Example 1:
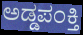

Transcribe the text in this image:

ಅಡ್ಡಪಂಕ್ತಿ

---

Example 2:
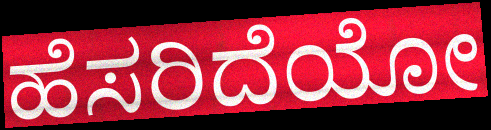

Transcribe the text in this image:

ಹೆಸರಿದೆಯೋ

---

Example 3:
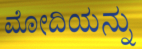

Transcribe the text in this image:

ಮೋದಿಯನ್ನು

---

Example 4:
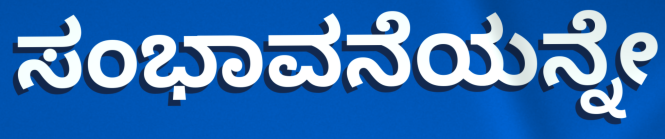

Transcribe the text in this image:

ಸಂಭಾವನೆಯನ್ನೇ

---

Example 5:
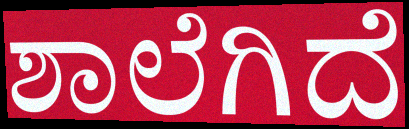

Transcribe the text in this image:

ಶಾಲೆಗಿದೆ